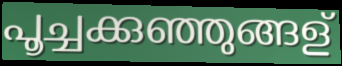
പൂച്ചക്കുഞ്ഞുങ്ങള്